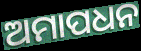
ଅମାପଧନ